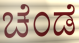
ಚೆಂಡೆ